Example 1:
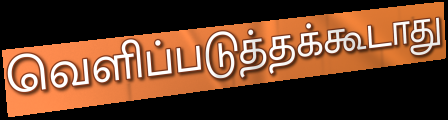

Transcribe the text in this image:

வெளிப்படுத்தக்கூடாது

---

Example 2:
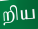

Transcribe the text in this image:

றிய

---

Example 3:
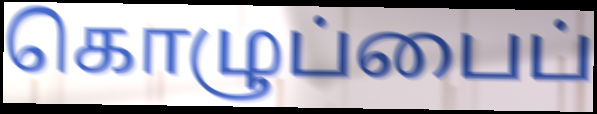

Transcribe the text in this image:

கொழுப்பைப்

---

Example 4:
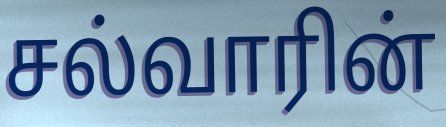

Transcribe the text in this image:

சல்வாரின்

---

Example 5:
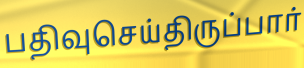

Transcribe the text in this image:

பதிவுசெய்திருப்பார்